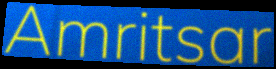
Amritsar